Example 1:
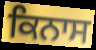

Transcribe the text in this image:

ਕਿਨਾਸ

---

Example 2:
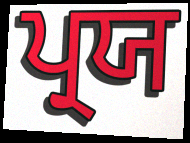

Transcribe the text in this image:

ਪ੍ਰਯ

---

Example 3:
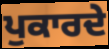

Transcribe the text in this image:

ਪੁਕਾਰਦੇ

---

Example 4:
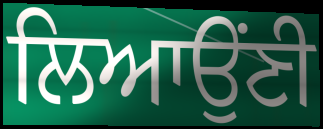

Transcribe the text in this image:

ਲਿਆਉਂਣੀ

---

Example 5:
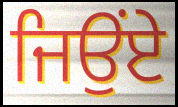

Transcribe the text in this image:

ਜਿਉਂਏ